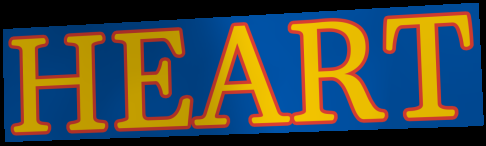
HEART